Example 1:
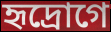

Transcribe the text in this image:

হৃদ্রোগে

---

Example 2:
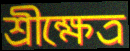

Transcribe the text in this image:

শ্রীক্ষেত্র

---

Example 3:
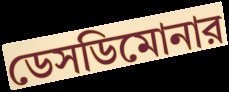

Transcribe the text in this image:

ডেসডিমোনার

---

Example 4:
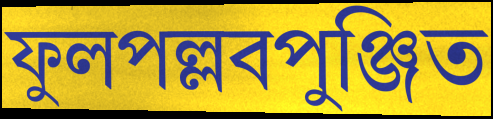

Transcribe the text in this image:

ফুলপল্লবপুঞ্জিত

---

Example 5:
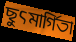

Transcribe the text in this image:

ছুৎমার্গিতা